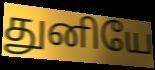
துனியே